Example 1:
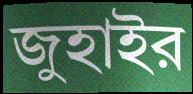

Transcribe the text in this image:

জুহাইর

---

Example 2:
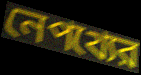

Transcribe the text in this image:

নেপথ্যের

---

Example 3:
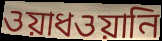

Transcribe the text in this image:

ওয়াধওয়ানি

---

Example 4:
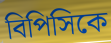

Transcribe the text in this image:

বিপিসিকে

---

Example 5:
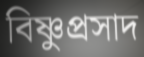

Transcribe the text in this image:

বিষ্ণুপ্রসাদ